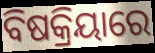
ବିଷକ୍ରିୟାରେ